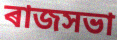
ৰাজসভা